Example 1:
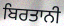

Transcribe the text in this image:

ਬਿਰਤਾਨੀ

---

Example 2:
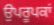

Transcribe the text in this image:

ਉਪਰੂਪਕਾਂ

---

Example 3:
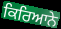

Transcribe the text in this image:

ਕਿਰਿਆਨੇ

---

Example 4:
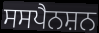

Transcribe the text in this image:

ਸਸਪੈਨਸ਼ਨ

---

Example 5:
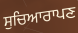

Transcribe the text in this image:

ਸੁਚਿਆਰਾਪਣ